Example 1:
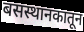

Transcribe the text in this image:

बसस्थानकातून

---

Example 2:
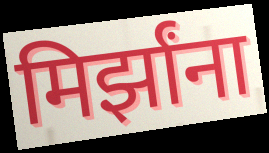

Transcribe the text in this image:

मिर्झांना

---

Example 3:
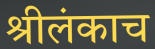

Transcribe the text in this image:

श्रीलंकाच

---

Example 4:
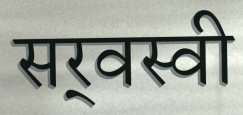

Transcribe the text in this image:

सर्वस्वी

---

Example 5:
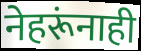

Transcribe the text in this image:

नेहरूंनाही